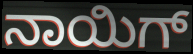
ನಾಯಿಗ್